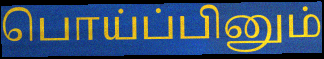
பொய்ப்பினும்